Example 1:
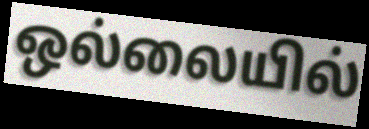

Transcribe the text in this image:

ஒல்லையில்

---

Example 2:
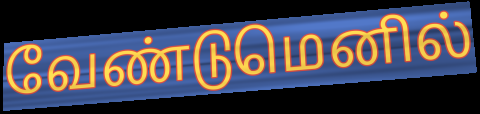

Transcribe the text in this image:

வேண்டுமெனில்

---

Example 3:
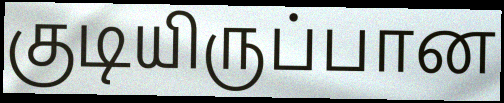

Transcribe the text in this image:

குடியிருப்பான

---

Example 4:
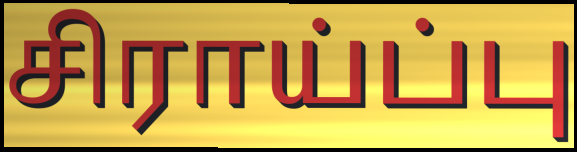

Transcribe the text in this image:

சிராய்ப்பு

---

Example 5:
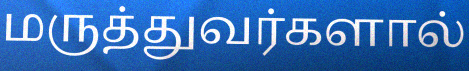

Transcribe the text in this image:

மருத்துவர்களால்